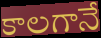
కాలగానే